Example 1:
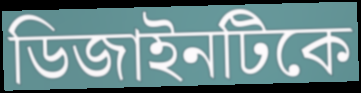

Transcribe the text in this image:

ডিজাইনটিকে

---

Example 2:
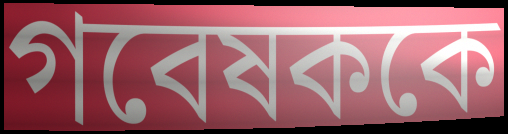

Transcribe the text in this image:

গবেষককে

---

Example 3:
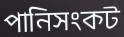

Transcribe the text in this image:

পানিসংকট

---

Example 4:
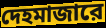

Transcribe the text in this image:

দেহমাজারে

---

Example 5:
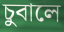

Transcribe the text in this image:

চুবালে